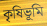
কৃষিভূমি